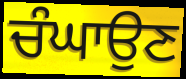
ਚੰਘਾਉਣ